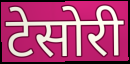
टेसोरी